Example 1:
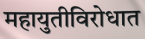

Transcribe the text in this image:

महायुतीविरोधात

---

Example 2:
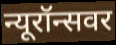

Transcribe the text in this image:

न्यूरॉन्सवर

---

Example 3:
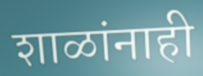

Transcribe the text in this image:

शाळांनाही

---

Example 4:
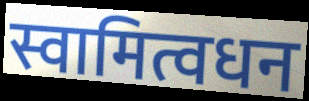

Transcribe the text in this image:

स्वामित्वधन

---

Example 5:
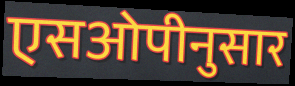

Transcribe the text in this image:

एसओपीनुसार